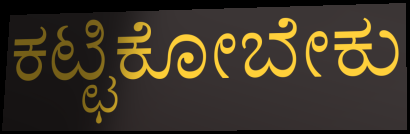
ಕಟ್ಟಿಕೋಬೇಕು